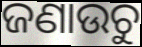
ଜଣାଉଚୁ